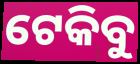
ଟେକିବୁ